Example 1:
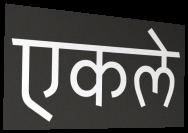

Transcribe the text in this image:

एकले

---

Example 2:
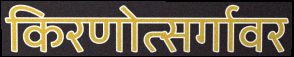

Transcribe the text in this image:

किरणोत्सर्गावर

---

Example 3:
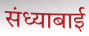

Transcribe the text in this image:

संध्याबाई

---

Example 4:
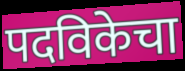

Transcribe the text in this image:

पदविकेचा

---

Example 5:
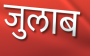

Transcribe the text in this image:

जुलाब